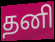
தனி